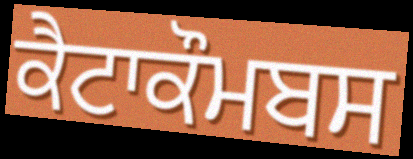
ਕੈਟਾਕੌਮਬਸ